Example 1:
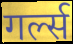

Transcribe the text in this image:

गर्ल्स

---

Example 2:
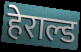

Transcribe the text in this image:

हेराल्ड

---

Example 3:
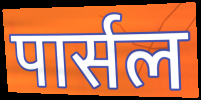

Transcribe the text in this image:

पार्सल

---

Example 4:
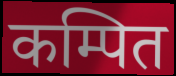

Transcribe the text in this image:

कम्पित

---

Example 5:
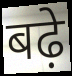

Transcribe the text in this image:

बढ़े